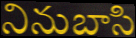
నినుబాసి